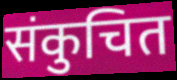
संकुचित